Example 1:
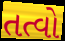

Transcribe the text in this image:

તત્વો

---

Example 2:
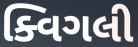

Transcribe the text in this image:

ક્વિગલી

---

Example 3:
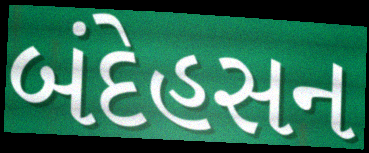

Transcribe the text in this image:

બંદેહસન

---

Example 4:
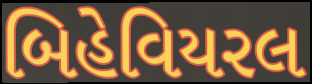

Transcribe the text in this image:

બિહેવિયરલ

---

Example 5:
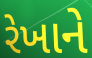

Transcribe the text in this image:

રેખાને